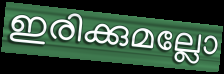
ഇരിക്കുമല്ലോ